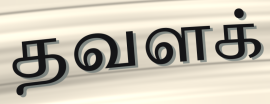
தவளக்